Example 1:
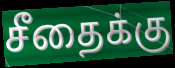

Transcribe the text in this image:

சீதைக்கு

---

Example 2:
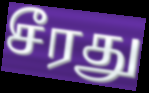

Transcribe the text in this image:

சீரது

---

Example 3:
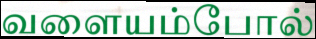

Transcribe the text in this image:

வளையம்போல்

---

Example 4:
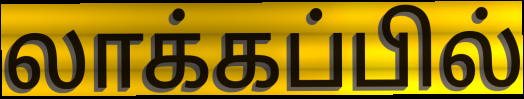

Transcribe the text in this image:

லாக்கப்பில்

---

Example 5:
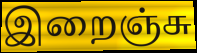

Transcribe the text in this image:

இறைஞ்சு